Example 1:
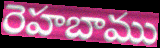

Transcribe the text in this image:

రెహబాము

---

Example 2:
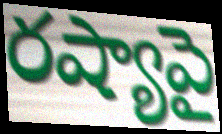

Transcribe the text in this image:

రష్యాపై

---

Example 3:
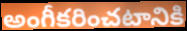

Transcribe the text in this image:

అంగీకరించటానికి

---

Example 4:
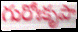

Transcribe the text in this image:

గురోఃకృపా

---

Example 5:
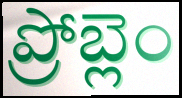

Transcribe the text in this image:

ప్రోబ్లెం